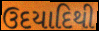
ઉદયાદિથી